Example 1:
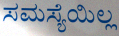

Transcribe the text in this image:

ಸಮಸ್ಯೆಯಿಲ್ಲ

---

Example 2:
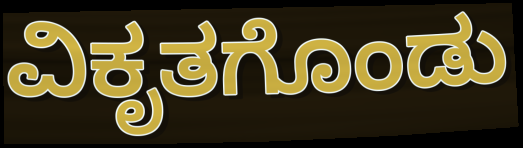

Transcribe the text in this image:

ವಿಕೃತಗೊಂಡು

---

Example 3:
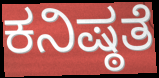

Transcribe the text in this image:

ಕನಿಷ್ಠತೆ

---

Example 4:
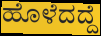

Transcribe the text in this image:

ಹೊಳೆದದ್ದೆ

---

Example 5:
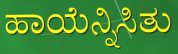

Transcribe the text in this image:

ಹಾಯೆನ್ನಿಸಿತು